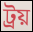
ট্রয়